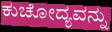
ಕುಚೋದ್ಯವನ್ನು